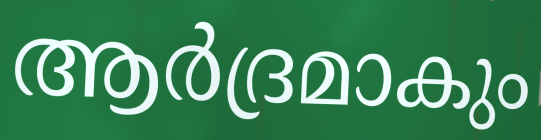
ആർദ്രമാകും